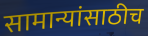
सामान्यांसाठीच